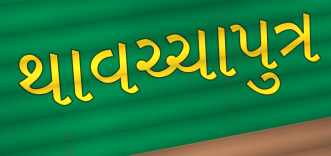
થાવચ્ચાપુત્ર